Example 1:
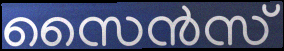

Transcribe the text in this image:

സൈൻസ്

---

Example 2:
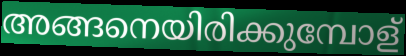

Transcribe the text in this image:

അങ്ങനെയിരിക്കുമ്പോള്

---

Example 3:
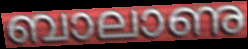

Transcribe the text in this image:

ബാലാണു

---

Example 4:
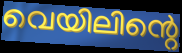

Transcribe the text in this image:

വെയിലിന്റെ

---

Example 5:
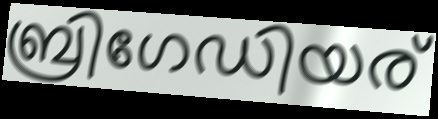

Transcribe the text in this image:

ബ്രിഗേഡിയര്